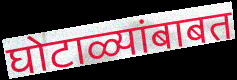
घोटाळ्यांबाबत